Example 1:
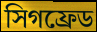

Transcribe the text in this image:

সিগফ্রেড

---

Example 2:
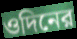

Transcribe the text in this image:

ওদিনের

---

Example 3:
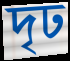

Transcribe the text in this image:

দৃঢ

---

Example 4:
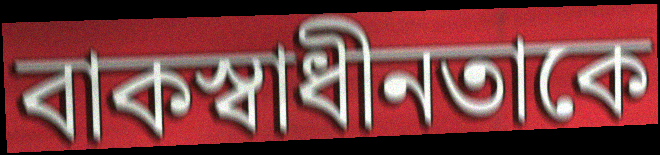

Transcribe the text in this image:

বাকস্বাধীনতাকে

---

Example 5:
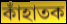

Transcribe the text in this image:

কাঁহাতক